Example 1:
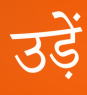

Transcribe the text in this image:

उड़ें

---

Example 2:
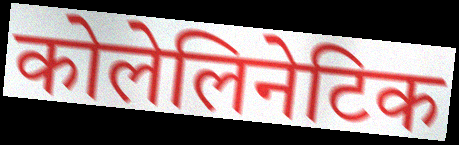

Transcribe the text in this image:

कोलेलिनेटिक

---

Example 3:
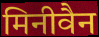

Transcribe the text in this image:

मिनीवैन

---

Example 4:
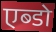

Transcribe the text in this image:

एब्डो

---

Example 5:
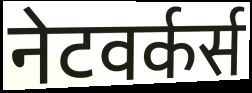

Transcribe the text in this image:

नेटवर्कर्स